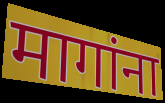
मागांना